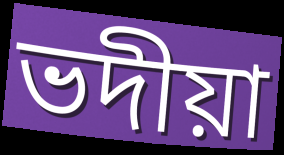
ভদীয়া